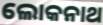
ଲୋକନାଥ